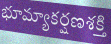
భూమ్యాకర్షణశక్తి